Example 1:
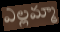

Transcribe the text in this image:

ఎల్లమ్మా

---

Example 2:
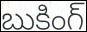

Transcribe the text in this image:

బుకింగ్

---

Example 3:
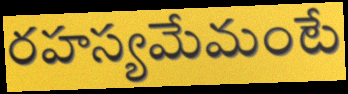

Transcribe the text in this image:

రహస్యమేమంటే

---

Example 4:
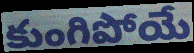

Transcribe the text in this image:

కుంగిపోయే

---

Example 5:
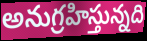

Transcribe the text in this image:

అనుగ్రహిస్తున్నది